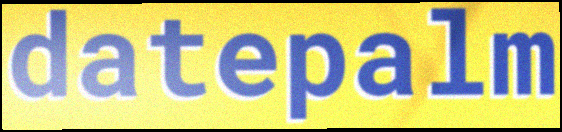
datepalm